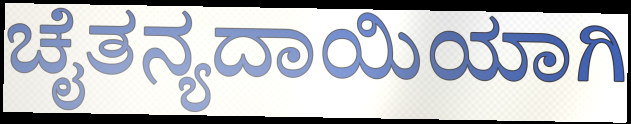
ಚೈತನ್ಯದಾಯಿಯಾಗಿ